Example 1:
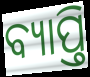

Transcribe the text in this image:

ବ୍ୟାପ୍ତି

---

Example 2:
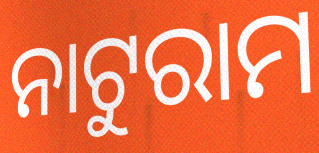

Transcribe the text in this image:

ନାଟୁରାମ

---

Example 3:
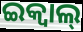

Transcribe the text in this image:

ଇକ୍ୱାଲ୍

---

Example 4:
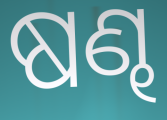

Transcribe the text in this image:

ଷଣ୍ଢ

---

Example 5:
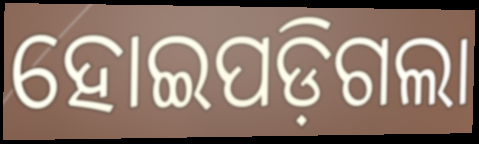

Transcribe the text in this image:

ହୋଇପଡ଼ିଗଲା